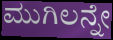
ಮುಗಿಲನ್ನೇ